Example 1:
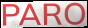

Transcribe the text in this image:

PARO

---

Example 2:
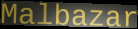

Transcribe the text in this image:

Malbazar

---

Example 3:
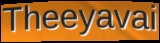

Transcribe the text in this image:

Theeyavai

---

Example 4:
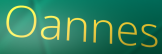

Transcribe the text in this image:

Oannes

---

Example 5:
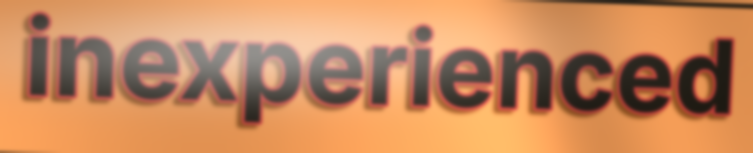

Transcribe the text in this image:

inexperienced